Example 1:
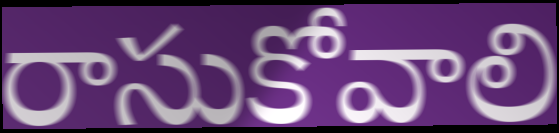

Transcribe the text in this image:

రాసుకోవాలి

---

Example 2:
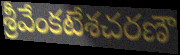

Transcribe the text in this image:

శ్రీవేంకటేశచరణౌ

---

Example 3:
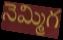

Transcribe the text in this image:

నెమ్మిగ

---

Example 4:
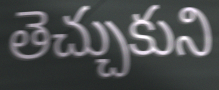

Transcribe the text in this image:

తెచ్చుకుని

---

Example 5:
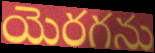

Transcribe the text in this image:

యెరగను